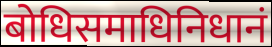
बोधिसमाधिनिधानं